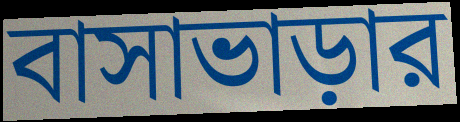
বাসাভাড়ার